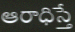
ఆరాధిస్తే